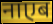
नाएब